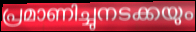
പ്രമാണിച്ചുനടക്കയും